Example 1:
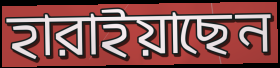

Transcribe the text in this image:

হারাইয়াছেন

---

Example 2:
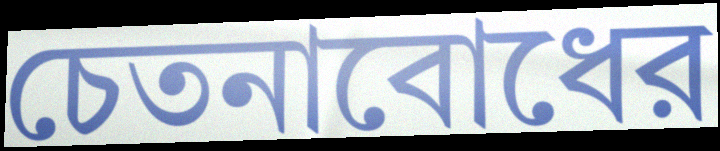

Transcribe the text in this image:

চেতনাবোধের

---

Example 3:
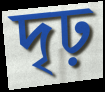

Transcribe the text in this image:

দৃঢ়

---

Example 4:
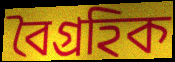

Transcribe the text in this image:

বৈগ্রহিক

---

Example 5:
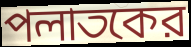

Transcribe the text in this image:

পলাতকের